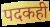
पदकही